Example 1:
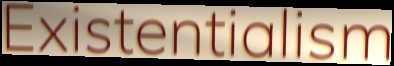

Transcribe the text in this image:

Existentialism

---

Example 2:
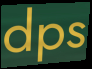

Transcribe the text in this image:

dps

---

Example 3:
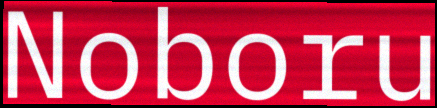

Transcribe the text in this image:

Noboru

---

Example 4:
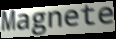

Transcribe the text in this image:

Magnete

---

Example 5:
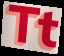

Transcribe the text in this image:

Tt